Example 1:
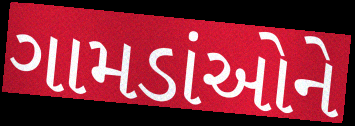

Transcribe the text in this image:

ગામડાંઓને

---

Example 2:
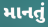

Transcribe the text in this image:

માનતું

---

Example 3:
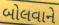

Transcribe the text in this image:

બોલવાને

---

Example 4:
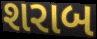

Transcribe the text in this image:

શરાબ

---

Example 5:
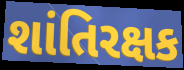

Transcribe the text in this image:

શાંતિરક્ષક